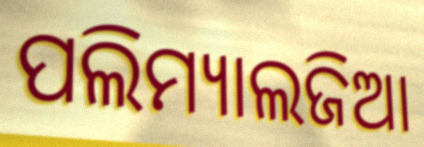
ପଲିମ୍ୟାଲଜିଆ